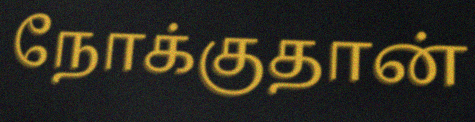
நோக்குதான்